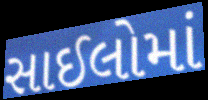
સાઈલોમાં